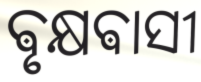
ଵୃକ୍ଷଵାସୀ